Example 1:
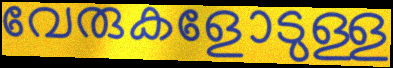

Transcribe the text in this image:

വേരുകളോടുള്ള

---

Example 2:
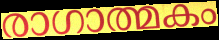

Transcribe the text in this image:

രാഗാത്മകം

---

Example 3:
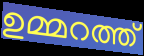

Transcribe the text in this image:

ഉമ്മറത്ത്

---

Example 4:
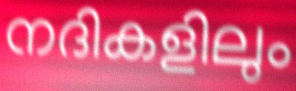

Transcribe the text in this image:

നദികളിലും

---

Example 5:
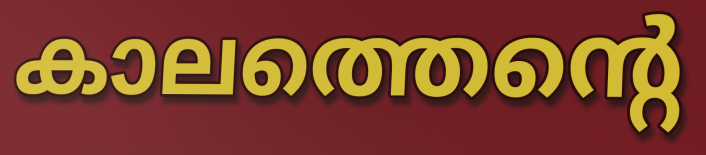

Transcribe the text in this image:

കാലത്തെന്റെ